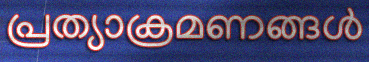
പ്രത്യാക്രമണങ്ങൾ